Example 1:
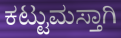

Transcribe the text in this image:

ಕಟ್ಟುಮಸ್ತಾಗಿ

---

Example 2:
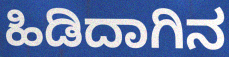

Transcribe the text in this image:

ಹಿಡಿದಾಗಿನ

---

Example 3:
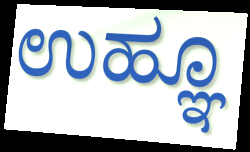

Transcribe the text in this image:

ಉಹ್ಞೂ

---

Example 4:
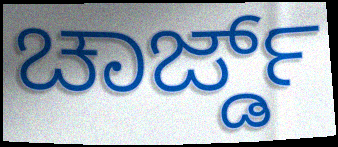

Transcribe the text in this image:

ಚಾರ್ಜ್ಡ್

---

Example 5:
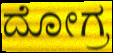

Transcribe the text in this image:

ದೋಗ್ರ